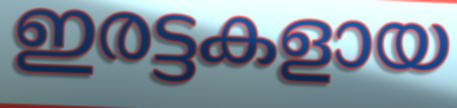
ഇരട്ടകളായ